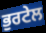
ਭੁਰਟੇਲ